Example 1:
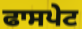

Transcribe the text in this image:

ਫਾਸਪੇਟ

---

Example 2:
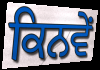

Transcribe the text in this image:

ਕਿਨਵੇਂ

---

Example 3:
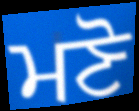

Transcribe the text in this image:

ਮਣੋ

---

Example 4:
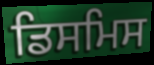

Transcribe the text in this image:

ਡਿਸਮਿਸ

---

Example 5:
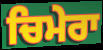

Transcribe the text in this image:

ਚਿਮੇਰਾ